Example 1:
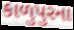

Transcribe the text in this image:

કાળુપુરના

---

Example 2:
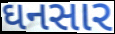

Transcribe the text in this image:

ઘનસાર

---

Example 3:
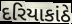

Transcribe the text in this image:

દરિયાકાંઠે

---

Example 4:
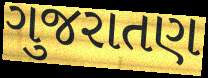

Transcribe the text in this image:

ગુજરાતણ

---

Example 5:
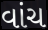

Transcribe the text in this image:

વાંચ